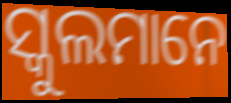
ସ୍କୁଲମାନେ